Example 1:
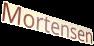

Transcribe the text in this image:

Mortensen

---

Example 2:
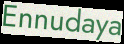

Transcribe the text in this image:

Ennudaya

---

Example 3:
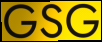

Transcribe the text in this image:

GSG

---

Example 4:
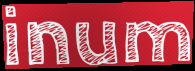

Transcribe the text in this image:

inum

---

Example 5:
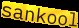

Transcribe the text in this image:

sankool